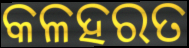
କଳହରତ